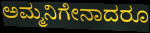
ಅಮ್ಮನಿಗೇನಾದರೂ